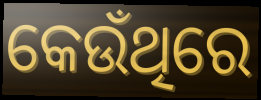
କେଉଁଥିରେ